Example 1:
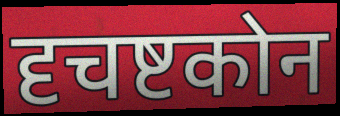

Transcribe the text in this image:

दृचष्टकोन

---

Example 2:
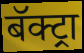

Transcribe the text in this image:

बॅक्ट्रा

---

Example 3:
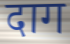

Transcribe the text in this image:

दाग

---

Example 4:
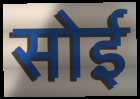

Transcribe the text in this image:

सोई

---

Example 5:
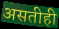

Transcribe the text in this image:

असतीही